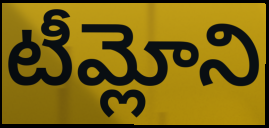
టీమ్లోని